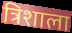
त्रिशाला